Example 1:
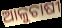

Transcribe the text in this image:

ଆଳୁଚାଷୀ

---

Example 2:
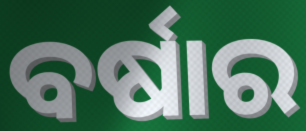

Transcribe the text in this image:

ବର୍ଷାର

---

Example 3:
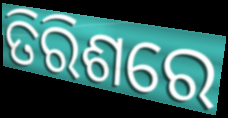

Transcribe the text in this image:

ତିରିଶରେ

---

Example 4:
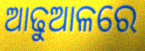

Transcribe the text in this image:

ଆଢୁଆଳରେ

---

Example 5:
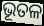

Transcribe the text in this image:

ଭୂତଳ